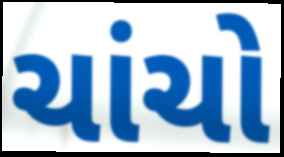
ચાંચો